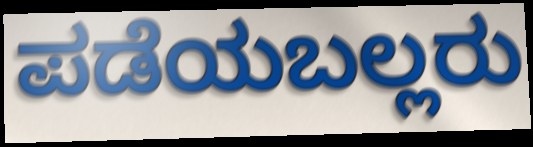
ಪಡೆಯಬಲ್ಲರು